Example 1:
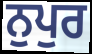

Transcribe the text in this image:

ਨੁਪੁਰ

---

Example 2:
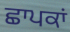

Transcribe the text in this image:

ਛਾਪਕਾਂ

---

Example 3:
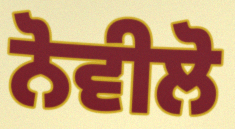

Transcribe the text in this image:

ਨੋਵੀਲੋ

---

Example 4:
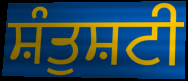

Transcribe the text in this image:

ਸ਼ੰਤੁਸ਼ਟੀ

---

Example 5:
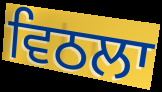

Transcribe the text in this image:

ਵਿਠਲਾ